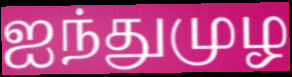
ஐந்துமுழ